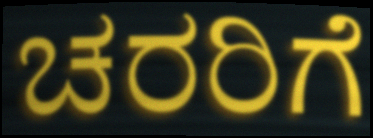
ಚರರಿಗೆ